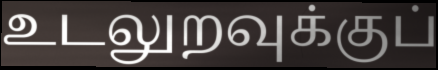
உடலுறவுக்குப்